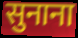
सुनाना